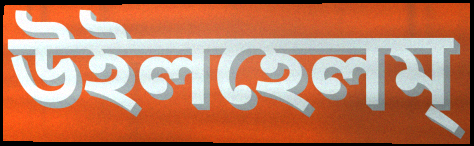
উইলহেলম্